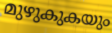
മുഴുകുകയും